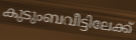
കുടുംബവീട്ടിലേക്ക്